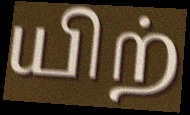
யிற்